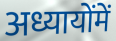
अध्यायोंमें